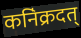
कनि॑क्रदत्